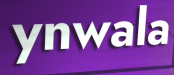
ynwala